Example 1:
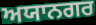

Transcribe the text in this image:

ਅਯਾਨਗਰ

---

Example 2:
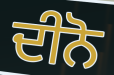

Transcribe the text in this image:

ਦੀਨੋ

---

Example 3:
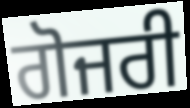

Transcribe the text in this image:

ਗੋਜਰੀ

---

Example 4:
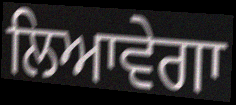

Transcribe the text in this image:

ਲਿਆਵੇਗਾ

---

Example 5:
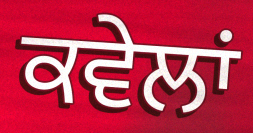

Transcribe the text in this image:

ਕਵੇਲਾਂ